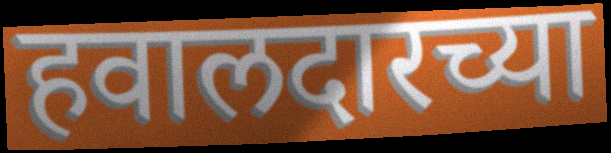
हवालदारच्या